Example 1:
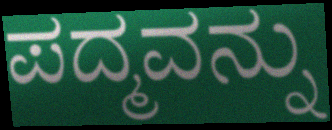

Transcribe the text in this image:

ಪದ್ಮವನ್ನು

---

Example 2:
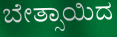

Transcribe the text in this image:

ಬೇತ್ಸಾಯಿದ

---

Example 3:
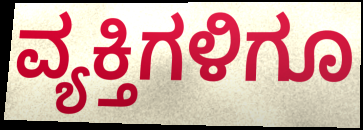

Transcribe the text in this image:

ವ್ಯಕ್ತಿಗಳಿಗೂ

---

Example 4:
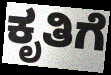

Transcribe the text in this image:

ಕೃತಿಗೆ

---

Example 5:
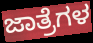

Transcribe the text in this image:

ಜಾತ್ರೆಗಳ